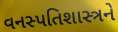
વનસ્પતિશાસ્ત્રને